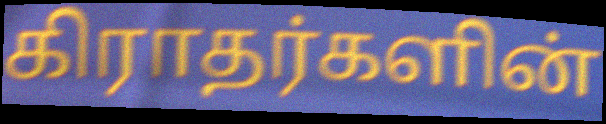
கிராதர்களின்